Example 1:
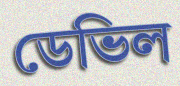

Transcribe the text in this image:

ডেভিল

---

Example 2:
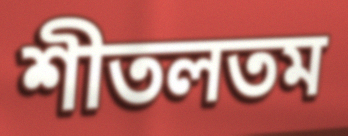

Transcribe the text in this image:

শীতলতম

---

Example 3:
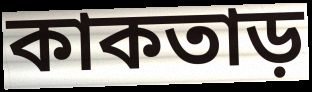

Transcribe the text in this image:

কাকতাড়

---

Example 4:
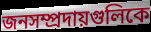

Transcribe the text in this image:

জনসম্প্রদায়গুলিকে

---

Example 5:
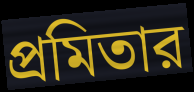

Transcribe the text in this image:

প্রমিতার